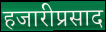
हजारीप्रसाद